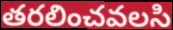
తరలించవలసి